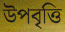
উপবৃত্তি